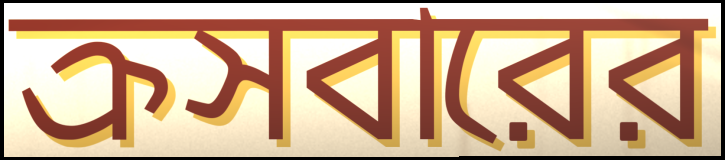
ক্রসবারের